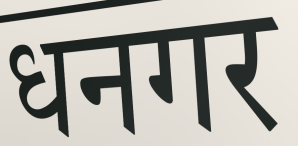
धनगर